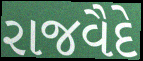
રાજવૈદે